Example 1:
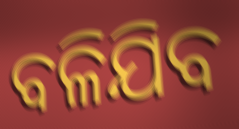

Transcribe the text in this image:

ବଳିଯିବ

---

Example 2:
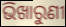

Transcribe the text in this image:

ଭିଖାରୁଣୀ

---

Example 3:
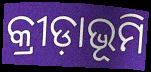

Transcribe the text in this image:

କ୍ରୀଡ଼ାଭୂମି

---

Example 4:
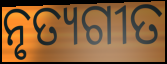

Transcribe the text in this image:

ନୃତ୍ୟଗୀତ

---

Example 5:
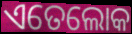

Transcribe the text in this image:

ଏତେଲୋକ